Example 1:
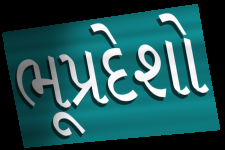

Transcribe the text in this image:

ભૂપ્રદેશો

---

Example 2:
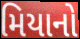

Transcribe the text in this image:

મિયાનો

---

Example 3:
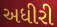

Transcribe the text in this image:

અધીરી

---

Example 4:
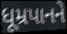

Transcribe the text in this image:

ધૂમ્રપાનને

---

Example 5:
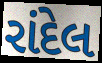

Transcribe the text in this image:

રાંદેલ